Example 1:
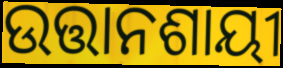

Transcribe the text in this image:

ଉତ୍ତାନଶାୟୀ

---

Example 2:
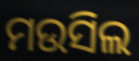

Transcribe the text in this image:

ମଉସିଲ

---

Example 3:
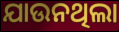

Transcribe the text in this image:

ଯାଉନଥିଲା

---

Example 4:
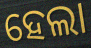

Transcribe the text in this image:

ହେଲା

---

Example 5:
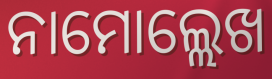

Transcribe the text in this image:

ନାମୋଲ୍ଲେଖ